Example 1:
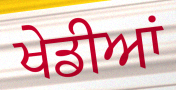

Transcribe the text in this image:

ਖੇਡੀਆਂ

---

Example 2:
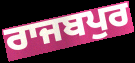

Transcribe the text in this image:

ਰਾਜਬਪੁਰ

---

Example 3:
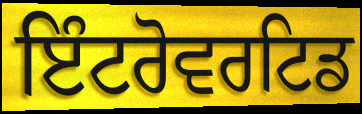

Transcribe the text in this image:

ਇੰਟਰੋਵਰਟਿਡ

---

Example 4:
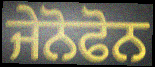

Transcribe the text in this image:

ਜੇਨੋਫੋਨ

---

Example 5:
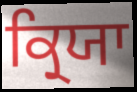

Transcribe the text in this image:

ਕ੍ਰਿਯਾ